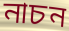
নাচন